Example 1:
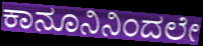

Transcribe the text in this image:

ಕಾನೂನಿನಿಂದಲೇ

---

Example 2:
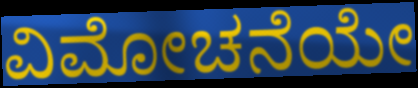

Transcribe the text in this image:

ವಿಮೋಚನೆಯೇ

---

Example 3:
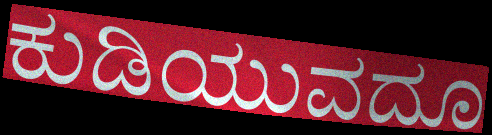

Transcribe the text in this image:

ಕುಡಿಯುವದೂ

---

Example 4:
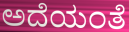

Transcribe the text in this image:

ಅದೆಯಂತೆ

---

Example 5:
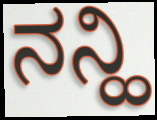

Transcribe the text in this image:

ನನ್ಹಿ